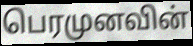
பெரமுனவின்